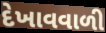
દેખાવવાળી